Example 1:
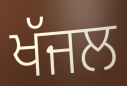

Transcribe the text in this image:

ਖੱਜਲ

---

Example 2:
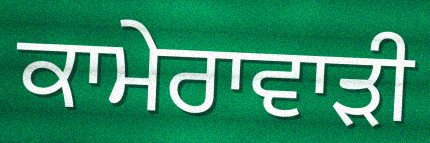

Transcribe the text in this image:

ਕਾਮੇਰਾਵਾੜੀ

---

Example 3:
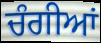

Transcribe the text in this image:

ਚੰਗੀਆਂ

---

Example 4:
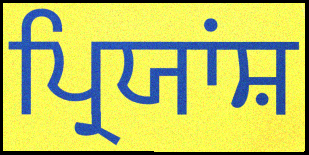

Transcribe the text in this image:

ਪ੍ਰਿਯਾਂਸ਼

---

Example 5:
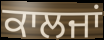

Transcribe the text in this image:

ਕਾਲਜਾਂ